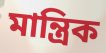
মান্ত্রিক